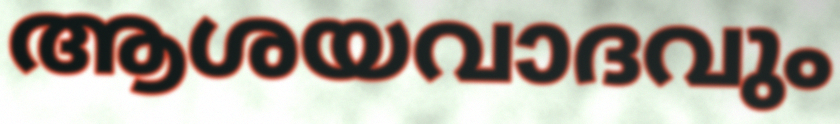
ആശയവാദവും